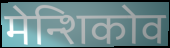
मेन्शिकोव